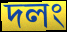
দলং